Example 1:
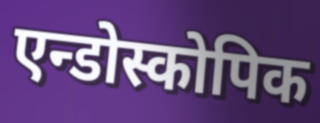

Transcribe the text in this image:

एन्डोस्कोपिक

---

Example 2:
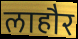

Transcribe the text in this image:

लाहौर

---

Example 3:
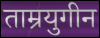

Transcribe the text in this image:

ताम्रयुगीन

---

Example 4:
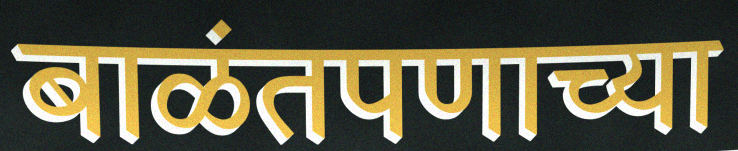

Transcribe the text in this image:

बाळंतपणाच्या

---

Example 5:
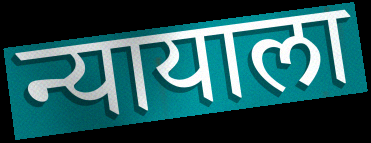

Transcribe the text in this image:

न्यायाला